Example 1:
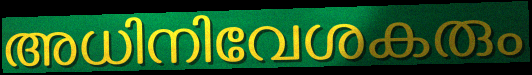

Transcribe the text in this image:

അധിനിവേശകരും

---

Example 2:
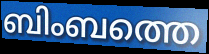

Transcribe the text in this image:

ബിംബത്തെ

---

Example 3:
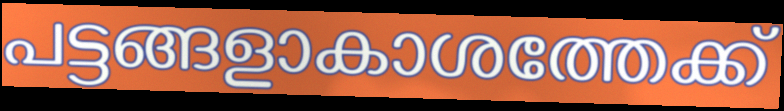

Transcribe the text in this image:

പട്ടങ്ങളാകാശത്തേക്ക്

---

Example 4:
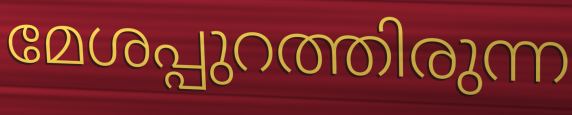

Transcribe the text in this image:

മേശപ്പുറത്തിരുന്ന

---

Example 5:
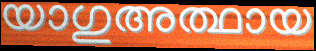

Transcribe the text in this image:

യാഗുഅത്ഥായ